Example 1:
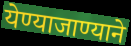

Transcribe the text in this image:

येण्याजाण्याने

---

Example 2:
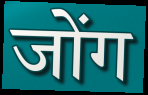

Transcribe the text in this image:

जोंग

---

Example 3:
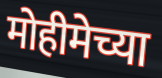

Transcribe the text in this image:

मोहीमेच्या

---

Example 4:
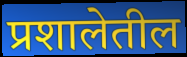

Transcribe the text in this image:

प्रशालेतील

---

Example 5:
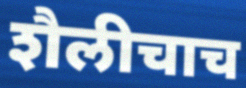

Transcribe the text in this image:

शैलीचाच